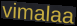
vimalaa